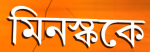
মিনস্ককে